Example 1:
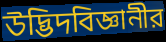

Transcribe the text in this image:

উদ্ভিদবিজ্ঞানীর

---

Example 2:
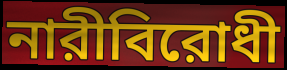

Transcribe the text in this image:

নারীবিরোধী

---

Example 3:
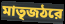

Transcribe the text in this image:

মাতৃজঠরে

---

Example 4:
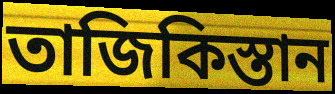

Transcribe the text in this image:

তাজিকিস্তান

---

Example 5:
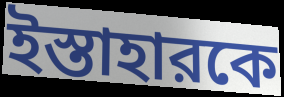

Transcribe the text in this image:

ইস্তাহারকে